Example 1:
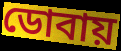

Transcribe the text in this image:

ডোবায়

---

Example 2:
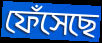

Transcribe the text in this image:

ফেঁসেছে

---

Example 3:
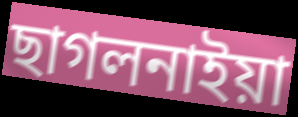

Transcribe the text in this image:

ছাগলনাইয়া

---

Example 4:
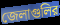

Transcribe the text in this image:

জেলাগুলির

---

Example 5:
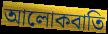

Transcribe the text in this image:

আলোকবাতি